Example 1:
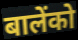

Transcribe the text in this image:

बालेंको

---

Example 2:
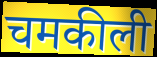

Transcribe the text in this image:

चमकीली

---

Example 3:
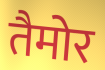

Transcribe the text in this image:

तैमोर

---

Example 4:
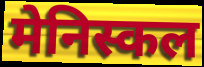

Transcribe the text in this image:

मेनिस्कल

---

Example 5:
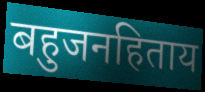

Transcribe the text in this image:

बहुजनहिताय